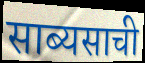
साब्यसाची